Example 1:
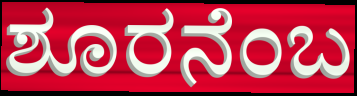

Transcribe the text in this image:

ಶೂರನೆಂಬ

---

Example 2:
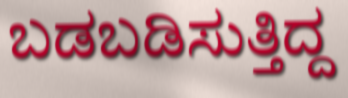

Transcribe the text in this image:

ಬಡಬಡಿಸುತ್ತಿದ್ದ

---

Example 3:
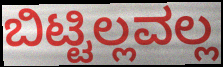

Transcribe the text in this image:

ಬಿಟ್ಟಿಲ್ಲವಲ್ಲ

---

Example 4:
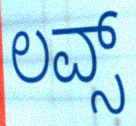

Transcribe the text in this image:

ಲವ್ಸ್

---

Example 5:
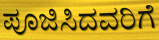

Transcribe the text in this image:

ಪೂಜಿಸಿದವರಿಗೆ